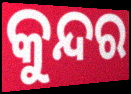
କୁନ୍ଦର